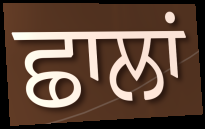
ਛਾਲਾਂ